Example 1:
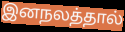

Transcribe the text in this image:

இனநலத்தால்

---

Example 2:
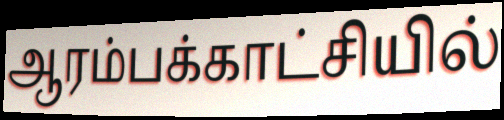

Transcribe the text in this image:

ஆரம்பக்காட்சியில்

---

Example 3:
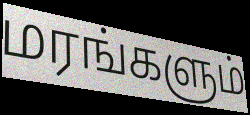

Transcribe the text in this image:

மரங்களும்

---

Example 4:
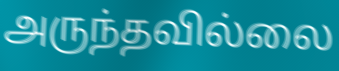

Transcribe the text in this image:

அருந்தவில்லை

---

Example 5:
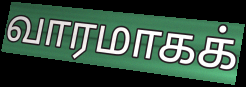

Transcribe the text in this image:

வாரமாகக்